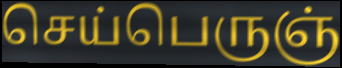
செய்பெருஞ்